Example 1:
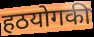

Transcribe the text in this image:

हठयोगकी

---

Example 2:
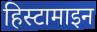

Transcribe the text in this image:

हिस्टामाइन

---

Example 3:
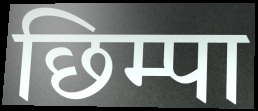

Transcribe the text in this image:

छिम्पा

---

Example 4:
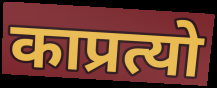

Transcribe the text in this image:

काप्रत्यो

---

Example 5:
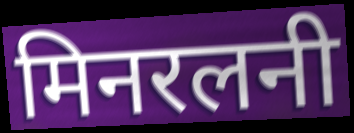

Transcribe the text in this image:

मिनरलनी